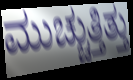
ಮುಚ್ಚುತ್ತಿತ್ತು